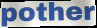
pother